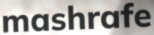
mashrafe